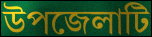
উপজেলাটি